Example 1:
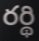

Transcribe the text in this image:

రర్థి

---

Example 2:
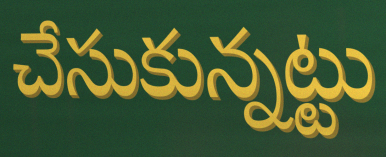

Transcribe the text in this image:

చేసుకున్నట్టు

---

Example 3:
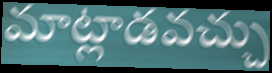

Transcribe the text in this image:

మాట్లాడవచ్చు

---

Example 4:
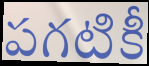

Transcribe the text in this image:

పగటికీ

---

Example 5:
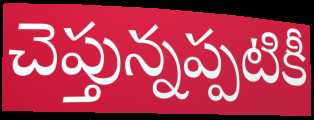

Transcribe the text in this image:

చెప్తున్నప్పటికీ